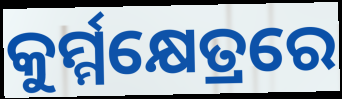
କୁର୍ମ୍ମକ୍ଷେତ୍ରରେ